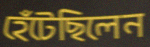
হেঁটেছিলেন